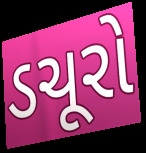
ડચૂરો